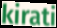
kirati